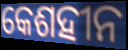
କେଶହୀନ